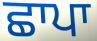
ਛਾਪਾ